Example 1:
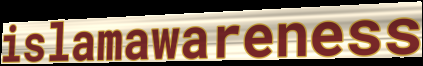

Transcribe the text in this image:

islamawareness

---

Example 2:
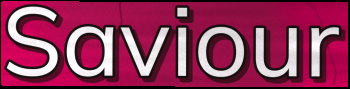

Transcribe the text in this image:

Saviour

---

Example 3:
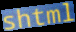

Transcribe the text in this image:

shtml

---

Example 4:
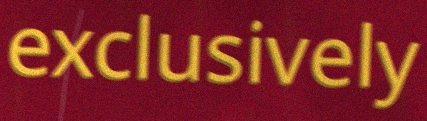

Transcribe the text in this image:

exclusively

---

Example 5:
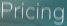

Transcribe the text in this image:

Pricing